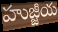
హుజ్జీయ